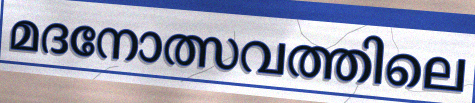
മദനോത്സവത്തിലെ